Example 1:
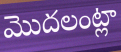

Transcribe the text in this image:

మొదలంట్లా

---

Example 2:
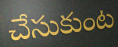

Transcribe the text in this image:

చేసుకుంట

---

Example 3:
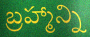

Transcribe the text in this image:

బ్రహ్మాన్ని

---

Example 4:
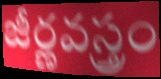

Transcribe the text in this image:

జీర్ణవస్త్రం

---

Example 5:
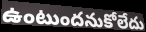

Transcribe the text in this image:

ఉంటుందనుకోలేదు